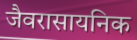
जैवरासायनिक